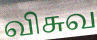
விசுவ